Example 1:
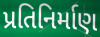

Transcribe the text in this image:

પ્રતિનિર્માણ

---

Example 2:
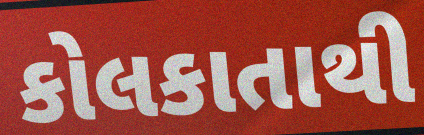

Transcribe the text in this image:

કોલકાતાથી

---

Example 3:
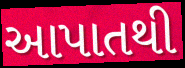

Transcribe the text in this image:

આપાતથી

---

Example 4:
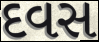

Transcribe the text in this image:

દવસ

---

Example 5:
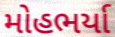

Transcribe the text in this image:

મોહભર્યા